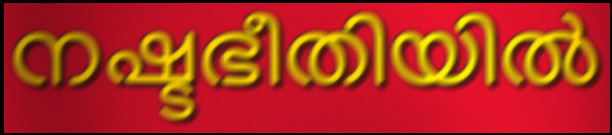
നഷ്ടഭീതിയിൽ